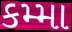
કમ્મા